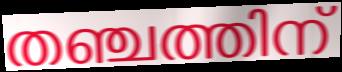
തഞ്ചത്തിന്